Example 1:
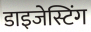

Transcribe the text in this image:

डाइजेस्टिंग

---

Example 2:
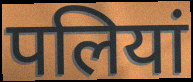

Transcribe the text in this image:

पलियां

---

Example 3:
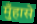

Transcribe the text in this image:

मुँहासे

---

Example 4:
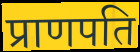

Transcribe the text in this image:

प्राणपति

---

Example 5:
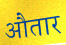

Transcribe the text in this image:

औतार